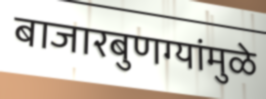
बाजारबुणग्यांमुळे